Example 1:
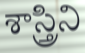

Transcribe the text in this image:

శాస్త్రిని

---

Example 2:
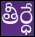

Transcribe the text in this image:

తీర్ధే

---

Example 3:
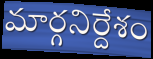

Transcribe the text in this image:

మార్గనిర్దేశం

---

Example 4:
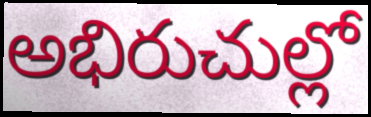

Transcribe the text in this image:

అభిరుచుల్లో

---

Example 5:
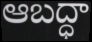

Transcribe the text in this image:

ఆబద్ధా